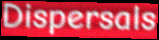
Dispersals